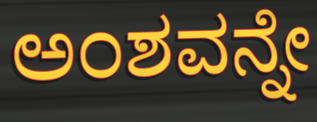
ಅಂಶವನ್ನೇ